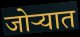
जोऱ्यात